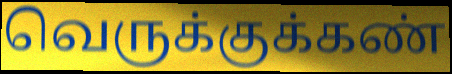
வெருக்குக்கண்